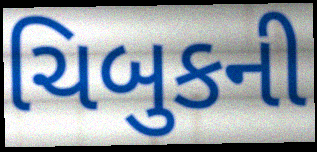
ચિબુકની